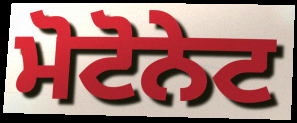
ਮੋਟੋਨੇਟ